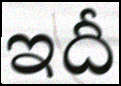
ఇదీ